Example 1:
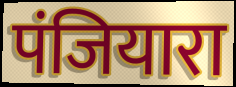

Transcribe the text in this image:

पंजियारा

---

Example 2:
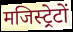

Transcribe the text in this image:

मजिस्ट्रेटों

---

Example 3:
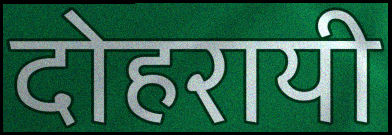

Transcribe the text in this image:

दोहरायी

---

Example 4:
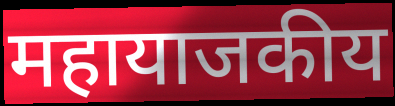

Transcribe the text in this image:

महायाजकीय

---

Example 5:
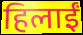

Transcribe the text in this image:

हिलाईं